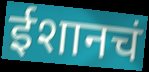
ईशानचं